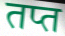
तप्त